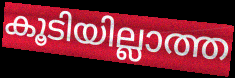
കൂടിയില്ലാത്ത